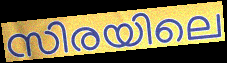
സിരയിലെ